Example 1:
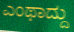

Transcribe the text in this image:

ಎಂಥಾದ್ದು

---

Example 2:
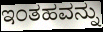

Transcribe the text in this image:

ಇಂತಹವನ್ನು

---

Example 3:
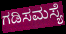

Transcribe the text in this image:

ಗಡಿಸಮಸ್ಯೆ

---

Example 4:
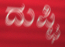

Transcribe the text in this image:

ದುಪ್ಟಿ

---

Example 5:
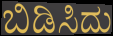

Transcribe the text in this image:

ಬಿಡಿಸಿದು